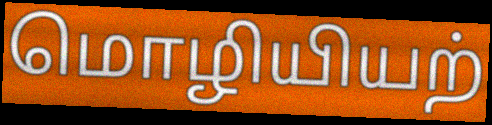
மொழியியற்